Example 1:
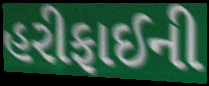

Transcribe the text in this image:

હરીફાઈની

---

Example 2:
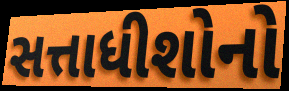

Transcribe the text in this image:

સત્તાધીશોનો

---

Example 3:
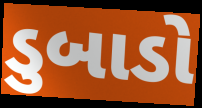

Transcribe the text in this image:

ડુબાડો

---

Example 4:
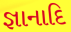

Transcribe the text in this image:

જ્ઞાનાદિ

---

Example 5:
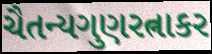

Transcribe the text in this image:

ચૈતન્યગુણરત્નાકર